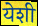
येशी